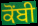
ਕੋਂਬੀ